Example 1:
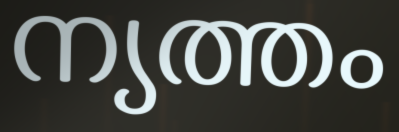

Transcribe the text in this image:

ന്യത്തം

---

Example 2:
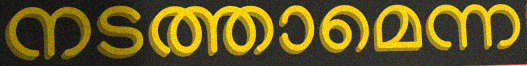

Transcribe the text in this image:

നടത്താമെന്ന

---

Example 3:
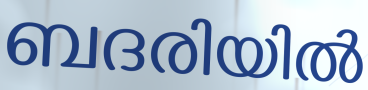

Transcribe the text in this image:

ബദരിയിൽ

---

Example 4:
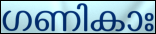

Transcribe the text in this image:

ഗണികാഃ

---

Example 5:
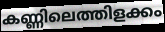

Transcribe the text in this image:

കണ്ണിലെത്തിളക്കം